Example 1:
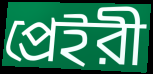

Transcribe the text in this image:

প্রেইরী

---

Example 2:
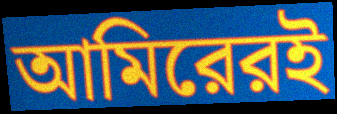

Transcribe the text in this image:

আমিরেরই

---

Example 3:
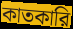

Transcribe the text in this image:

কাতকারি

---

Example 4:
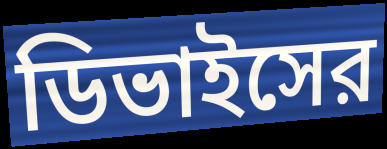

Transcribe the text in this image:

ডিভাইসের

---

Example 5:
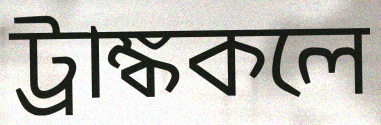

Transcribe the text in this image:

ট্রাঙ্ককলে